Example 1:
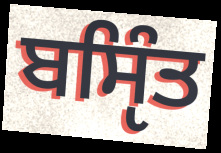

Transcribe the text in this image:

ਬਸੵਿੰਤ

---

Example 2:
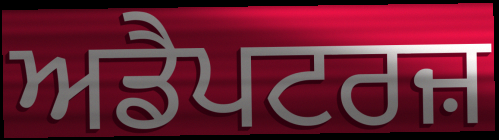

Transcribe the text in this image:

ਅਡੈਪਟਰਜ਼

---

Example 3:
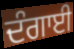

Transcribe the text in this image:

ਦੰਗਾਈ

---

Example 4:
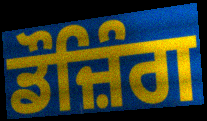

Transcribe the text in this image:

ਡੌਜ਼ਿੰਗ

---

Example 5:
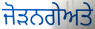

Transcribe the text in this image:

ਜੋੜਨਗੇਅਤੇ